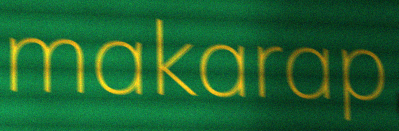
makarap